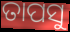
ତାପସୁ